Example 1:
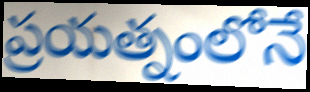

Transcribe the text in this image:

ప్రయత్నంలోనే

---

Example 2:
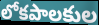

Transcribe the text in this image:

లోకపాలకుల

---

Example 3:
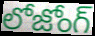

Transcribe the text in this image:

లోజోంగ్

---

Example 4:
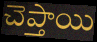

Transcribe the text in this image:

చెప్తాయి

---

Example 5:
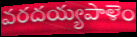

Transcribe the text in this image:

వరదయ్యపాళెం